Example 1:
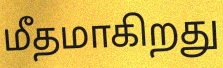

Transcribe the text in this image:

மீதமாகிறது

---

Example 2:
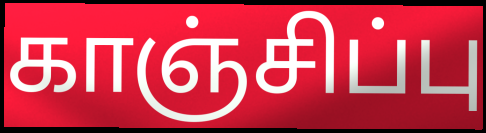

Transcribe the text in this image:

காஞ்சிப்பு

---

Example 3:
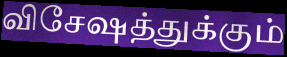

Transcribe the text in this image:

விசேஷத்துக்கும்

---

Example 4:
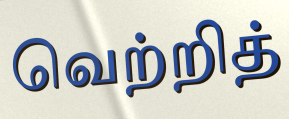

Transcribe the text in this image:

வெற்றித்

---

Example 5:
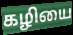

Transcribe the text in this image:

கழியை